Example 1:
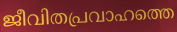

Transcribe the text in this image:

ജീവിതപ്രവാഹത്തെ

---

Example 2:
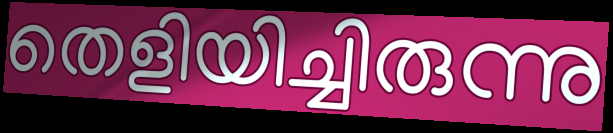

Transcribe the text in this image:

തെളിയിച്ചിരുന്നു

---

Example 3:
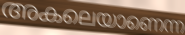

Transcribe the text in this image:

അകലെയാണെന്ന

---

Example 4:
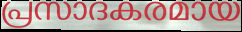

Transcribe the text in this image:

പ്രസാദകരമായ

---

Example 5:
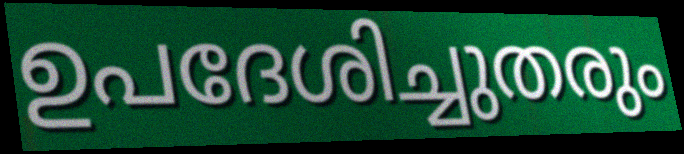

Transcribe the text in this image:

ഉപദേശിച്ചുതരും